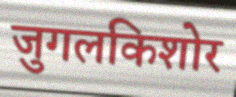
जुगलकिशोर